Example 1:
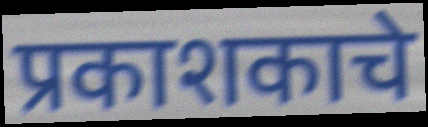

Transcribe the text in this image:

प्रकाशकाचे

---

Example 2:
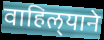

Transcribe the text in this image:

वाहिल्याने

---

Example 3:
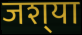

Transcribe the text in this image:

जश्या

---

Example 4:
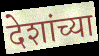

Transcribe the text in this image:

देशांच्या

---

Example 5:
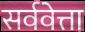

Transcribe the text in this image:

सर्ववेत्ता